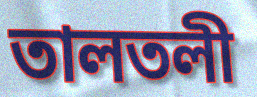
তালতলী